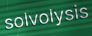
solvolysis